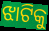
ଝାଟିକୁ